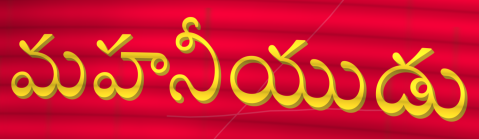
మహనీయుడు